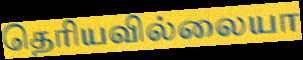
தெரியவில்லையா